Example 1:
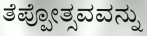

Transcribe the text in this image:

ತೆಪ್ಪೋತ್ಸವವನ್ನು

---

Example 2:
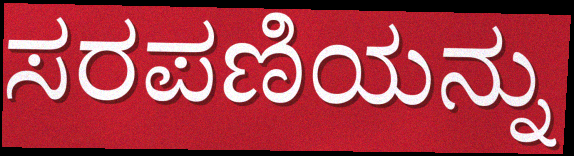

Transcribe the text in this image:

ಸರಪಣಿಯನ್ನು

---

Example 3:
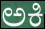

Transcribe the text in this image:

ಅಕಿ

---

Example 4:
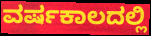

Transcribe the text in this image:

ವರ್ಷಕಾಲದಲ್ಲಿ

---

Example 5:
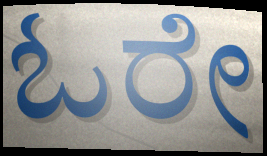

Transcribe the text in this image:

ಓರೇ